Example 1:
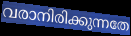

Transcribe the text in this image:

വരാനിരിക്കുന്നതേ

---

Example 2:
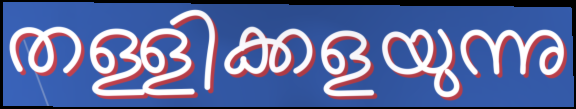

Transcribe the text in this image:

തള്ളിക്കളയുന്നു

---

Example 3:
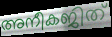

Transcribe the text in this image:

അനീകജിത്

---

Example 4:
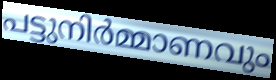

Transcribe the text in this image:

പട്ടുനിർമ്മാണവും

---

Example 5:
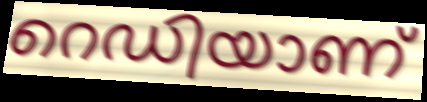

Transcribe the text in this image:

റെഡിയാണ്